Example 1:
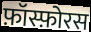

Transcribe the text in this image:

फ़ॉस्फ़ोरस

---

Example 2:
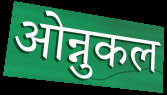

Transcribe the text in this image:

ओन्नुकल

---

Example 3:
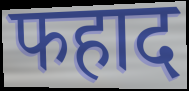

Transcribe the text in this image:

फहाद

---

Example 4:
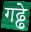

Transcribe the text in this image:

गढ्ढे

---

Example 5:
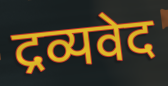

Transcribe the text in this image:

द्रव्यवेद